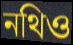
নথিও